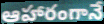
ఆహారంగానే